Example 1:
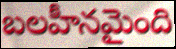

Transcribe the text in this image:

బలహీనమైంది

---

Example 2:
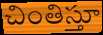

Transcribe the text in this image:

చింతిస్తూ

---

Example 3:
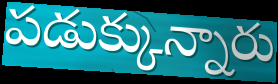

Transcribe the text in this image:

పడుక్కున్నారు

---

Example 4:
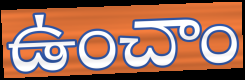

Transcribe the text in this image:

ఉంచాం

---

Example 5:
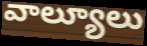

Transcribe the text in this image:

వాల్యూలు